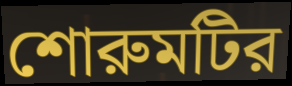
শোরুমটির